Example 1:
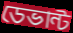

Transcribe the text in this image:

ডেভান্ট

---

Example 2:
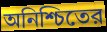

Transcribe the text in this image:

অনিশ্চিতের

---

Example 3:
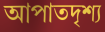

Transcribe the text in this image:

আপাতদৃশ্য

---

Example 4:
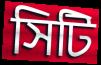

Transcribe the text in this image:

সিটি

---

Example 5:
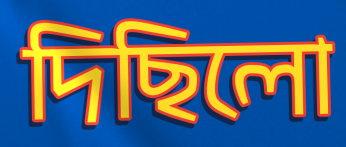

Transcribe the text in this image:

দিছিলো